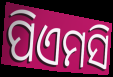
ପିଏମସି